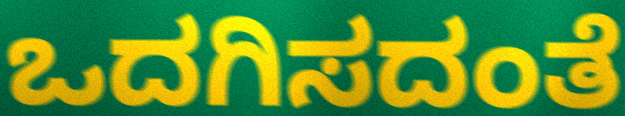
ಒದಗಿಸದಂತೆ